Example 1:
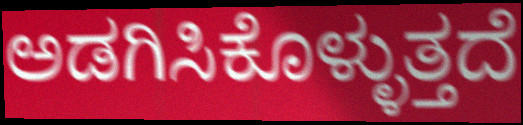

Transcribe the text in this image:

ಅಡಗಿಸಿಕೊಳ್ಳುತ್ತದೆ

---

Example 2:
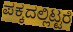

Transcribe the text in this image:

ಪಕ್ಕದಲ್ಲಿಟ್ಟರೆ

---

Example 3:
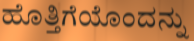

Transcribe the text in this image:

ಹೊತ್ತಿಗೆಯೊಂದನ್ನು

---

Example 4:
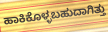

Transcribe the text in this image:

ಹಾಕಿಕೊಳ್ಳಬಹುದಾಗಿತ್ತು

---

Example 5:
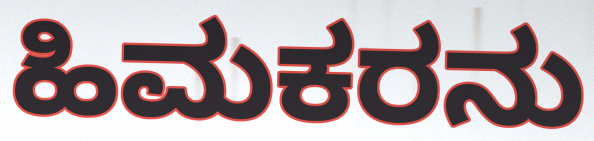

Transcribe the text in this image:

ಹಿಮಕರನು